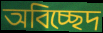
অবিচ্ছেদ